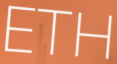
ETH